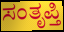
ಸಂತೃಪ್ತಿ